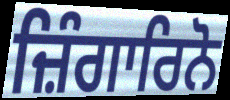
ਜ਼ਿੰਗਾਰਿਨੋ